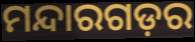
ମନ୍ଦାରଗଡ଼ର